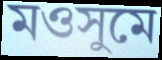
মওসুমে